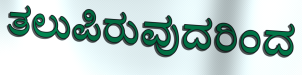
ತಲುಪಿರುವುದರಿಂದ